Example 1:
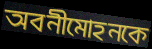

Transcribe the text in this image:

অবনীমোহনকে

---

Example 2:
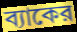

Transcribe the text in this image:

ব্যাকের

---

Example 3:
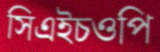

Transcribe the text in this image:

সিএইচওপি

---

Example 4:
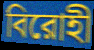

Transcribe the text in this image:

বিরোহী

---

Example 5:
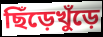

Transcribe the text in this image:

ছিঁড়েখুঁড়ে